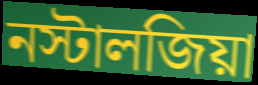
নস্টালজিয়া